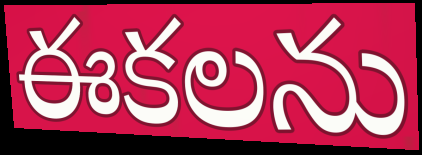
ఈకలను